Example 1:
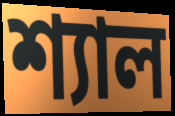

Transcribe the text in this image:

শ্যাল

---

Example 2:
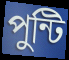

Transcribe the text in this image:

পুন্টি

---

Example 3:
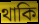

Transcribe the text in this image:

থাকি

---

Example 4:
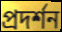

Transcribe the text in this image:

প্রদর্শন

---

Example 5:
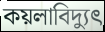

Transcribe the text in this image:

কয়লাবিদ্যুৎ